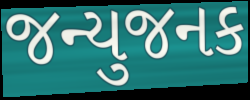
જન્યુજનક